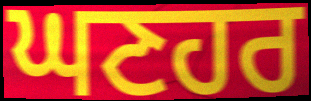
ਘਣਹਰ